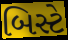
બિસ્ટે